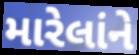
મારેલાંને